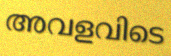
അവളവിടെ